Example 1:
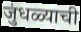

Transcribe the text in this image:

जुंधळ्याची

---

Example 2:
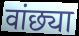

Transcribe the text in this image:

वांछ्या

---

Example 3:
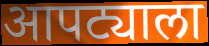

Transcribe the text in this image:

आपट्याला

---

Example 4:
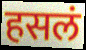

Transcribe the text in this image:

हसलं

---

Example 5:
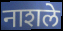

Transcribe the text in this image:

नाशले